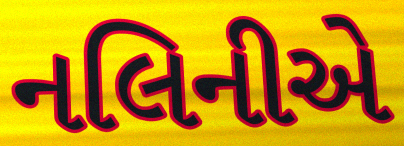
નલિનીએ